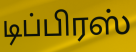
டிப்பிரஸ்